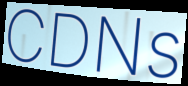
CDNs